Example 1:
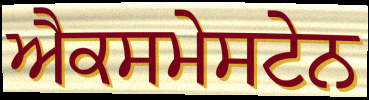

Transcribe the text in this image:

ਐਕਸਮੇਸਟੇਨ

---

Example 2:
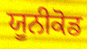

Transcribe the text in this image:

ਯੂਨੀਕੋਡ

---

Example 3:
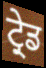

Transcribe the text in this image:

ਟ੍ਰੇਡ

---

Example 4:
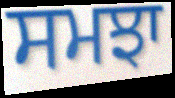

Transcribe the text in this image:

ਸਮਝਾ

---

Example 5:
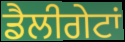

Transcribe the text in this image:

ਡੈਲੀਗੇਟਾਂ